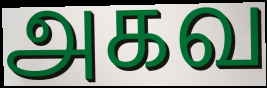
அகவ